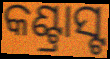
କଣ୍ଟ୍ରାସ୍ଟ